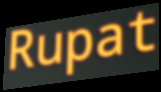
Rupat